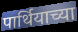
पार्थियाच्या